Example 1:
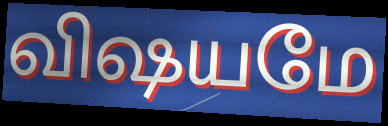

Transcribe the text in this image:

விஷயமே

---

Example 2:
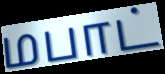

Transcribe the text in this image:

மபாட்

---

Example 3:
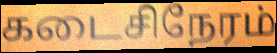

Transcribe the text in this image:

கடைசிநேரம்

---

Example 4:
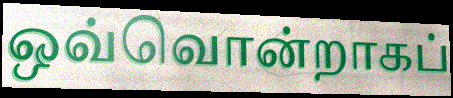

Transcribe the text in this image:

ஒவ்வொன்றாகப்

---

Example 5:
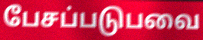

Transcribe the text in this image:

பேசப்படுபவை